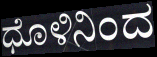
ಧೊಳಿನಿಂದ